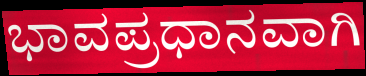
ಭಾವಪ್ರಧಾನವಾಗಿ